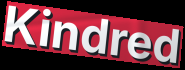
Kindred